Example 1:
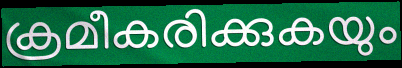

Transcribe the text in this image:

ക്രമീകരിക്കുകയും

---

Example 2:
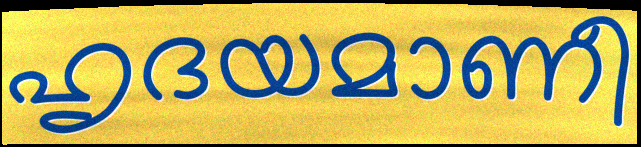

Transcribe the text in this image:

ഹൃദയമാണീ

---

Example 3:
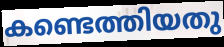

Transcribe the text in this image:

കണ്ടെത്തിയതു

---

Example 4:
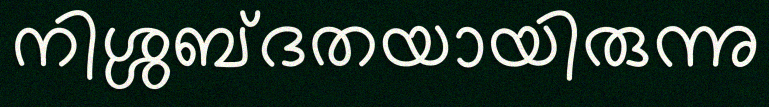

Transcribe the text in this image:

നിശ്ശബ്ദതയായിരുന്നു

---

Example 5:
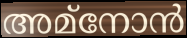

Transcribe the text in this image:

അമ്നോൻ